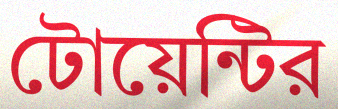
টোয়েন্টির